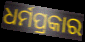
ଧର୍ମପ୍ରକାର